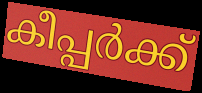
കീപ്പർക്ക്